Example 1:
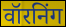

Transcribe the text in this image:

वॉरनिंग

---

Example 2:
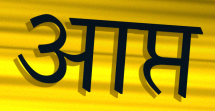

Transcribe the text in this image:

आप्त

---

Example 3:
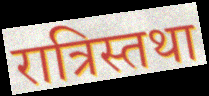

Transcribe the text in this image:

रात्रिस्तथा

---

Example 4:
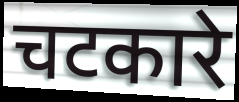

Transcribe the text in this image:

चटकारे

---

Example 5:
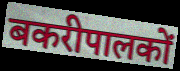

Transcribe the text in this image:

बकरीपालकों